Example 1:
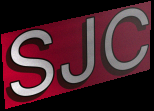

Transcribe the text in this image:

SJC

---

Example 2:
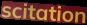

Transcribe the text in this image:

scitation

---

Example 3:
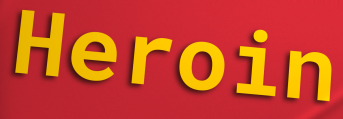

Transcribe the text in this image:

Heroin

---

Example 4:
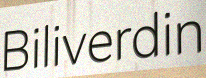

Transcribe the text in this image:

Biliverdin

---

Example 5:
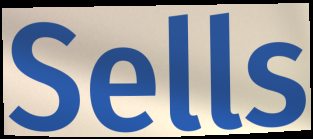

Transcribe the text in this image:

Sells